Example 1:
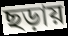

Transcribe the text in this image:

ছড়ায়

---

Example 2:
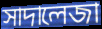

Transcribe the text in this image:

সাদালেজা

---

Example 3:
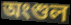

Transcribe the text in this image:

অংশুল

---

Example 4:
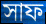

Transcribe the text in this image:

সাফ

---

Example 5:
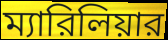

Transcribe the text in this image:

ম্যারিলিয়ার